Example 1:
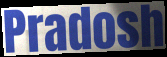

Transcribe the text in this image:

Pradosh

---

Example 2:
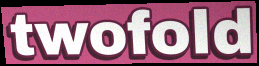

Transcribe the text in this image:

twofold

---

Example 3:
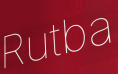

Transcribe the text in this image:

Rutba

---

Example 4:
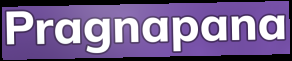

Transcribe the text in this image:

Pragnapana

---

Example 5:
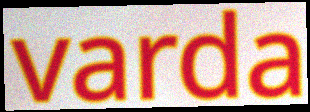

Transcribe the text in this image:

varda